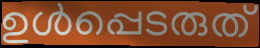
ഉൾപ്പെടരുത്